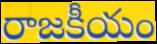
రాజకీయం